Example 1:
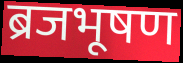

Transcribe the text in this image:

ब्रजभूषण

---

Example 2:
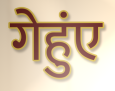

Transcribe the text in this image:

गेहुंए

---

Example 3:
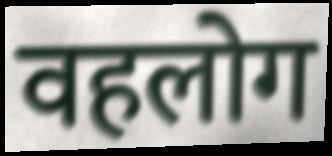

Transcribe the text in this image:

वहलोग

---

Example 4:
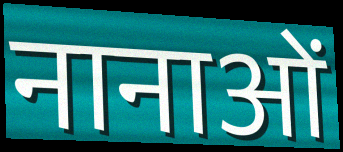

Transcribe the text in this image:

नानाओं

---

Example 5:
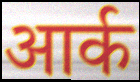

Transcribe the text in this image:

आर्क